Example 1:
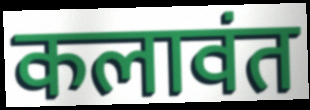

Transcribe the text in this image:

कलावंत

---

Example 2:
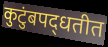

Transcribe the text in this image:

कुटुंबपद्धतीत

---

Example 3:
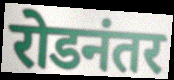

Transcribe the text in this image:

रोडनंतर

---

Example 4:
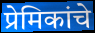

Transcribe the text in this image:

प्रेमिकांचे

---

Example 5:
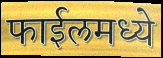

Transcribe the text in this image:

फाईलमध्ये